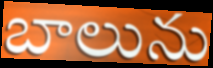
బాలును